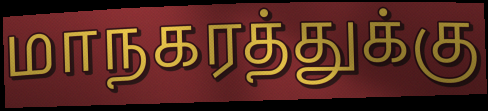
மாநகரத்துக்கு